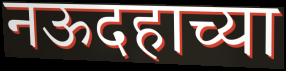
नऊदहाच्या